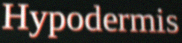
Hypodermis